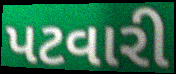
પટવારી